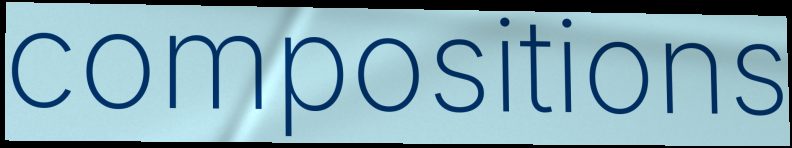
compositions